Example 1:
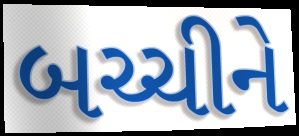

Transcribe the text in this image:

બચ્ચીને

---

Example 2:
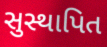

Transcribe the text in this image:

સુસ્થાપિત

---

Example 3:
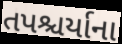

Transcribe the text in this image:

તપશ્ચર્યાના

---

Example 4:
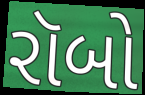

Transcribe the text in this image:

રૉબો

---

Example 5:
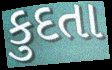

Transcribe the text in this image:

કુદતા